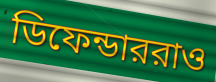
ডিফেন্ডাররাও